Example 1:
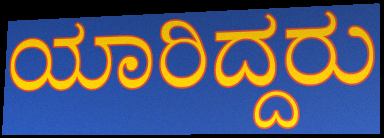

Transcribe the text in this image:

ಯಾರಿದ್ದರು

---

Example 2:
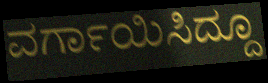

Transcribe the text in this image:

ವರ್ಗಾಯಿಸಿದ್ದೂ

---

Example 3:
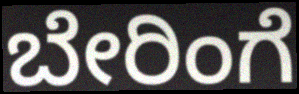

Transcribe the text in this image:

ಬೇರಿಂಗೆ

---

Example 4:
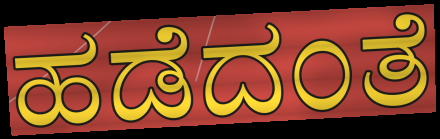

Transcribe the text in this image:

ಹಡೆದಂತೆ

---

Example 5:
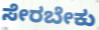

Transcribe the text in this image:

ಸೇರಬೇಕು